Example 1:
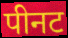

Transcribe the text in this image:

पीनट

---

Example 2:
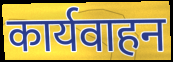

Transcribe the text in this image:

कार्यवाहन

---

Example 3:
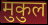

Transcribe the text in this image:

मुकुल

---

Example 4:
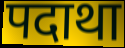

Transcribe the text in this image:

पदाथा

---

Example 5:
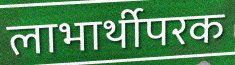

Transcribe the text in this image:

लाभार्थीपरक